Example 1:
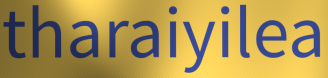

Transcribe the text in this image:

tharaiyilea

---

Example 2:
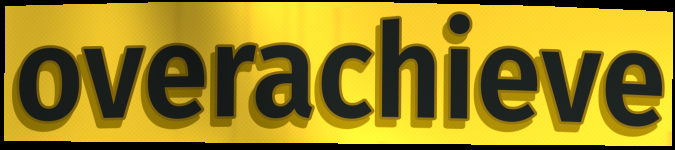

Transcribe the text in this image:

overachieve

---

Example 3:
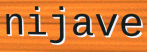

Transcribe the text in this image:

nijave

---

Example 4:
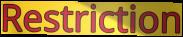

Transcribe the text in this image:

Restriction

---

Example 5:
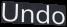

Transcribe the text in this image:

Undo